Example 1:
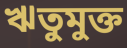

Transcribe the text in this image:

ঋতুমুক্ত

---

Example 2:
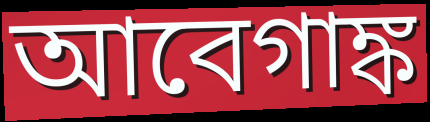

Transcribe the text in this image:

আবেগাঙ্ক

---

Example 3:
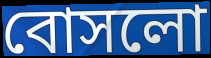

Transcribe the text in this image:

বোসলো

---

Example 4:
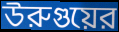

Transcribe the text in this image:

উরুগুয়ের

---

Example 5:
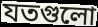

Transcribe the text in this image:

যতগুলো